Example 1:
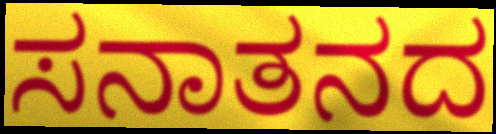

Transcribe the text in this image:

ಸನಾತನದ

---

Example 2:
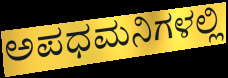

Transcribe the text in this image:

ಅಪಧಮನಿಗಳಲ್ಲಿ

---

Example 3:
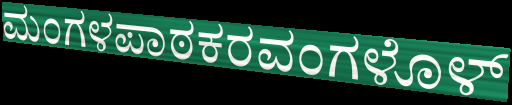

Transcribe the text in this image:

ಮಂಗಳಪಾಠಕರವಂಗಳೊಳ್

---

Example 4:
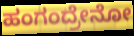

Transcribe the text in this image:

ಹಂಗಂದ್ರೇನೋ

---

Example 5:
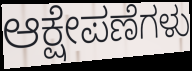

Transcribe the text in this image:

ಆಕ್ಷೇಪಣೆಗಳು